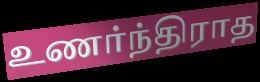
உணர்ந்திராத